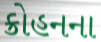
ક્રોહનના